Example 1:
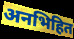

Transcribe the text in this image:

अनभिहित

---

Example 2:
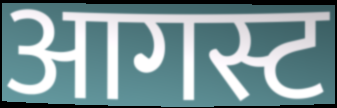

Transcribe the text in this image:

आगस्ट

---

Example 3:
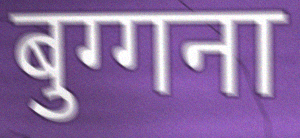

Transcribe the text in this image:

बुग्गना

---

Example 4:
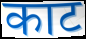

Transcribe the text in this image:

काट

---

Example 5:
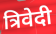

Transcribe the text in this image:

त्रिवेदी